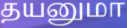
தயனுமா